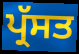
ਪ੍ਰੱਸਤ